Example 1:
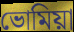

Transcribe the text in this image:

ভোমিয়া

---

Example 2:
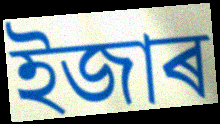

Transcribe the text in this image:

ইজাৰ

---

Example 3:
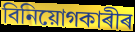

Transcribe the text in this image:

বিনিয়োগকাৰীৰ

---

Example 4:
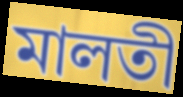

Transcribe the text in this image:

মালতী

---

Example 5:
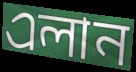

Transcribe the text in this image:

এলান